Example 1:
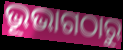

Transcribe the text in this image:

ଭୂଭାଗଠାରୁ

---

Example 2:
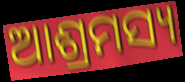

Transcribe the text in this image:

ଆଶ୍ରମସ୍ୟ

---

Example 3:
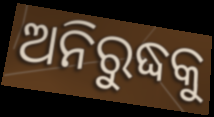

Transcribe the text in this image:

ଅନିରୁଦ୍ଧକୁ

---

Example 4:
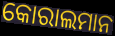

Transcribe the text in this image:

କୋରାଲମାନ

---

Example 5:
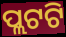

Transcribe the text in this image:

ପ୍ଲଟଟି